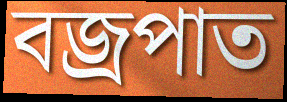
বজ্রপাত